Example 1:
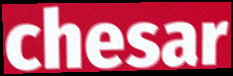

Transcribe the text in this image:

chesar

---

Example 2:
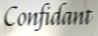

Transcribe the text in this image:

Confidant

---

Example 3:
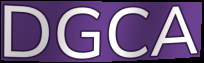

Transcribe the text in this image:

DGCA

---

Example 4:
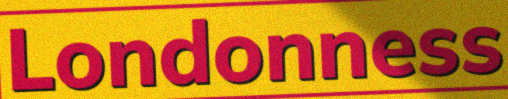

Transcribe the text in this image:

Londonness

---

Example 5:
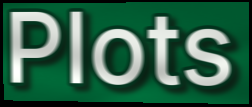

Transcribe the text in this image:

Plots